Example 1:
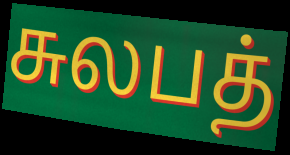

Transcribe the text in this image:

சுலபத்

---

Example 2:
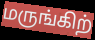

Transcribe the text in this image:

மருங்கிற்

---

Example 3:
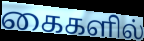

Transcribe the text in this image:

கைகளில்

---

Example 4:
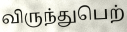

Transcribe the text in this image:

விருந்துபெற்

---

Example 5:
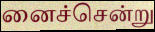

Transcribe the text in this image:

னைச்சென்று